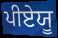
ਪੀਏਯੂ